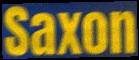
Saxon